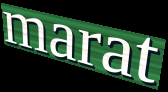
marat